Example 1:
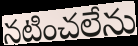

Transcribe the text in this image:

నటించలేను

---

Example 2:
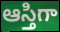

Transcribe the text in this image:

ఆస్తిగా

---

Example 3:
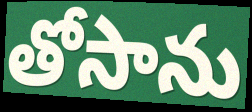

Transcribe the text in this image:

తోసాను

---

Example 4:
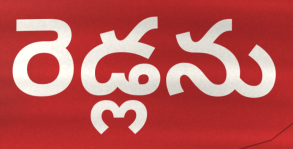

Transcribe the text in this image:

రెడ్లను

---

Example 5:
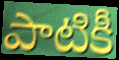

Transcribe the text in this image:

పాటికీ